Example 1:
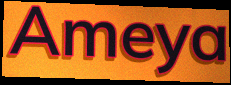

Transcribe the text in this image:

Ameya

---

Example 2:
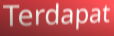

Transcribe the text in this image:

Terdapat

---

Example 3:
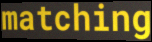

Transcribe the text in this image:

matching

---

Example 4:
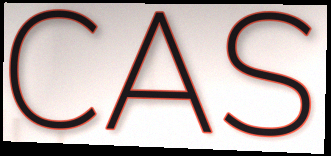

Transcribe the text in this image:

CAS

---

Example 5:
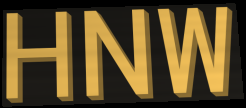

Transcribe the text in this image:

HNW